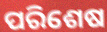
ପରିଶେଷ